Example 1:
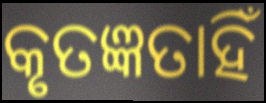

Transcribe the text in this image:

କୃତଜ୍ଞତାହିଁ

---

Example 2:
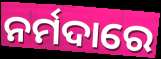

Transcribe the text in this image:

ନର୍ମଦାରେ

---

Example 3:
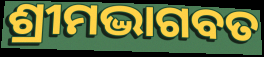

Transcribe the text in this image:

ଶ୍ରୀମଦ୍ଭାଗବତ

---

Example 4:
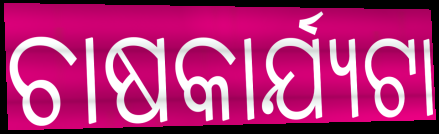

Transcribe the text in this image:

ଚାଷକାର୍ଯ୍ୟଟା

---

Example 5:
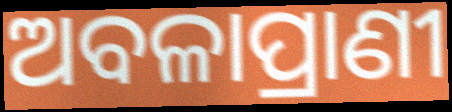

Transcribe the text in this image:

ଅବଳାପ୍ରାଣୀ